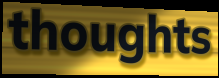
thoughts